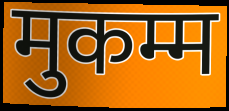
मुकम्म